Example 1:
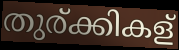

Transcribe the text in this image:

തുര്ക്കികള്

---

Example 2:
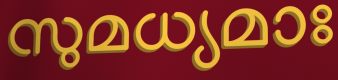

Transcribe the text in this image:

സുമധ്യമാഃ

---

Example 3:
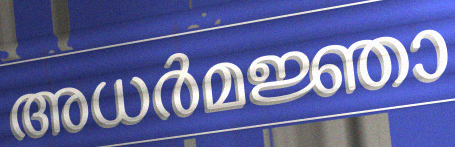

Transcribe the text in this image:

അധർമജ്ഞാ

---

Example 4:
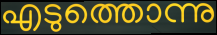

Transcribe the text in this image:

എടുത്തൊന്നു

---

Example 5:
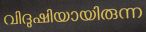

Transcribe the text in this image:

വിദുഷിയായിരുന്ന